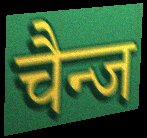
चैन्ज